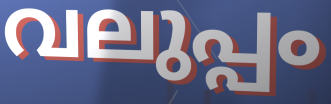
വലുപ്പം